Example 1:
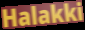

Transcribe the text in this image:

Halakki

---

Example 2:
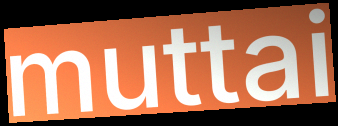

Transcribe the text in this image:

muttai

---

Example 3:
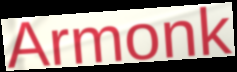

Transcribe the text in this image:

Armonk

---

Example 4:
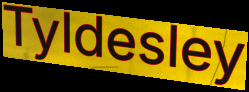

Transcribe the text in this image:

Tyldesley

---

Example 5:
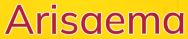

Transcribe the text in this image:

Arisaema